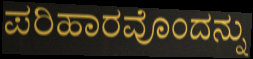
ಪರಿಹಾರವೊಂದನ್ನು